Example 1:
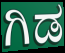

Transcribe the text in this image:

ಗಿಡ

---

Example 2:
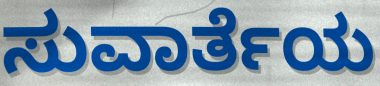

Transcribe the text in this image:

ಸುವಾರ್ತೆಯ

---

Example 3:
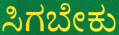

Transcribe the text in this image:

ಸಿಗಬೇಕು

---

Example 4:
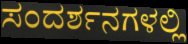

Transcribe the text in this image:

ಸಂದರ್ಶನಗಳಲ್ಲಿ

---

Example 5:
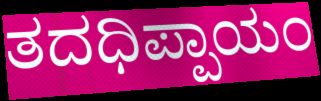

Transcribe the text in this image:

ತದಧಿಪ್ಪಾಯಂ